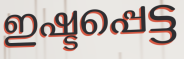
ഇഷ്ടപ്പെട്ട